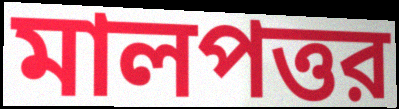
মালপত্তর